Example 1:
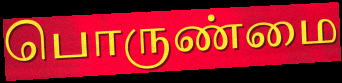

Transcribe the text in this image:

பொருண்மை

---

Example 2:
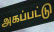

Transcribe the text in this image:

அகப்பட்டு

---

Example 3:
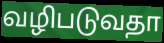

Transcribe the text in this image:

வழிபடுவதா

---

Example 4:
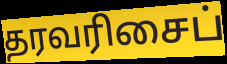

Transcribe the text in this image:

தரவரிசைப்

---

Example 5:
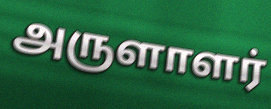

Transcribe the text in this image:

அருளாளர்